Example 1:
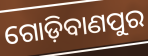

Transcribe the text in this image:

ଗୋଡ଼ିବାଣପୁର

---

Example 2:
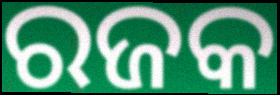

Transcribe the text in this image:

ରଜକ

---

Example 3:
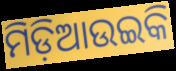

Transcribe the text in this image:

ମିଡ଼ିଆଉଇକି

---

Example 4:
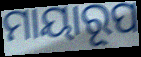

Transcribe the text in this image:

ମାୟାରୂପ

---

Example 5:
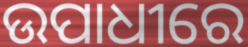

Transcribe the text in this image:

ଉପାଧୀରେ